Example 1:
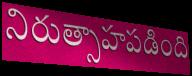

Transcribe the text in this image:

నిరుత్సాహపడింది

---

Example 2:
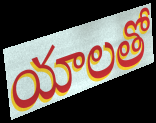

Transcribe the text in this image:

యాలతో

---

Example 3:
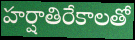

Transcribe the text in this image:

హర్షాతిరేకాలతో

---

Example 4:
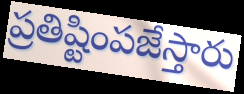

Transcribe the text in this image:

ప్రతిష్టింపజేస్తారు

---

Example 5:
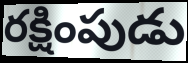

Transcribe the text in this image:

రక్షింపుడు